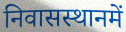
निवासस्थानमें